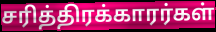
சரித்திரக்காரர்கள்